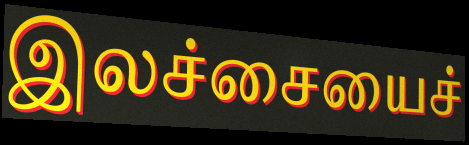
இலச்சையைச்